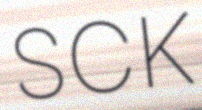
SCK